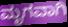
ಮೃಗವಾಗಿ